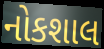
નોકશાલ